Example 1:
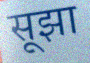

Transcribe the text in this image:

सूझा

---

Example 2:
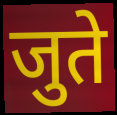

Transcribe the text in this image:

जुते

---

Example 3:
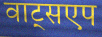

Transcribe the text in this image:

वाट्सएप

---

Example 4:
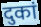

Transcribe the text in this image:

दुकां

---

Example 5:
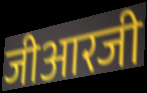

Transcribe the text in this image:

जीआरजी